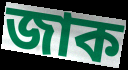
জাক